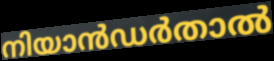
നിയാൻഡർതാൽ